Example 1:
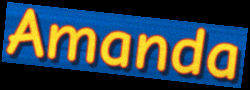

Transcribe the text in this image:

Amanda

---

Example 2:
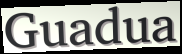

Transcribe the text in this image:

Guadua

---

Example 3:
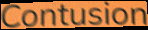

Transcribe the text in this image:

Contusion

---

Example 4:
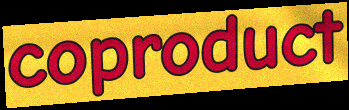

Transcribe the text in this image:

coproduct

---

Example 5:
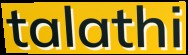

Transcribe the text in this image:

talathi